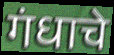
गंधाचे